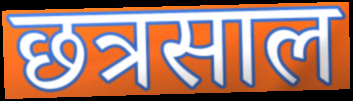
छत्रसाल